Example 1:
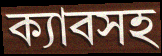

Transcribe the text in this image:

ক্যাবসহ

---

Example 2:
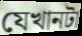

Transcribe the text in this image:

যেখানটা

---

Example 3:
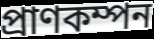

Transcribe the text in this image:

প্রাণকম্পন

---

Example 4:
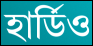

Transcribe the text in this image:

হার্ডিও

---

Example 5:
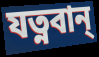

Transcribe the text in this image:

যত্নবান্